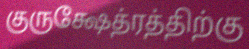
குருக்ஷேத்ரத்திற்கு